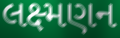
લક્ષ્મણન